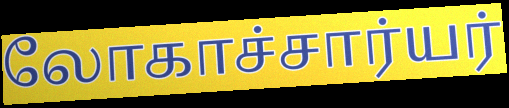
லோகாச்சார்யர்